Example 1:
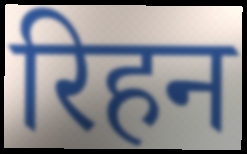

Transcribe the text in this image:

रिहन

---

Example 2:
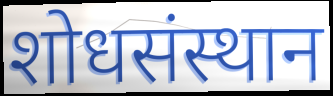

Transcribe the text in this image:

शोधसंस्थान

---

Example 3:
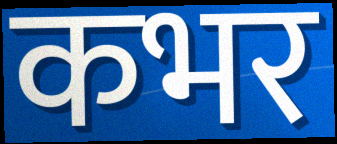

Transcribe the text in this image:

कभर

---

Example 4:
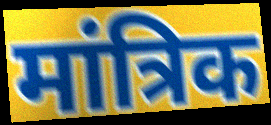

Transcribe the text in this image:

मांत्रिक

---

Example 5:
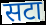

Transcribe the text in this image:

सटा